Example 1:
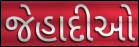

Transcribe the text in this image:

જેહાદીઓ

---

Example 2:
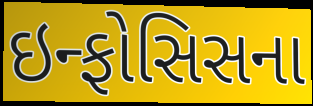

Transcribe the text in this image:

ઇન્ફોસિસના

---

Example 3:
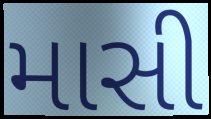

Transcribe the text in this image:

માસી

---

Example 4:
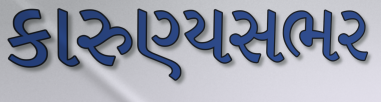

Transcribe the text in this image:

કારુણ્યસભર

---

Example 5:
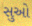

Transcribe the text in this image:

સુઓ